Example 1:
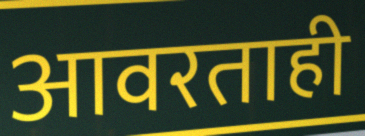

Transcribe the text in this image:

आवरताही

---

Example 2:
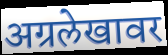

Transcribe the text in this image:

अग्रलेखावर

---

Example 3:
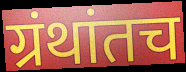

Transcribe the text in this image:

ग्रंथांतच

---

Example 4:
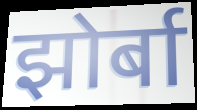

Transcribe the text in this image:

झोर्बा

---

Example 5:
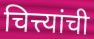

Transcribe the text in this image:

चित्त्यांची